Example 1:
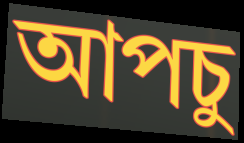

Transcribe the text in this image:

আপচু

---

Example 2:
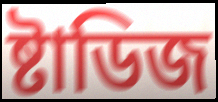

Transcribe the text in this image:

ষ্টাডিজ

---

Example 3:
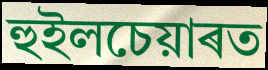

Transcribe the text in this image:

হুইলচেয়াৰত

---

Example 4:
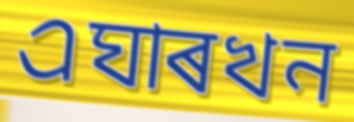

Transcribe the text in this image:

এঘাৰখন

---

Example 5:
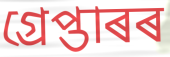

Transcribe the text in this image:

গ্ৰেপ্তাৰৰ